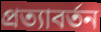
প্রত্যাবর্তন